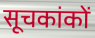
सूचकांकों